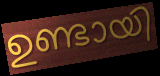
ഉണ്ടായി